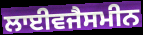
ਲਾਈਵਜੈਸਮੀਨ